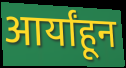
आर्यांहून